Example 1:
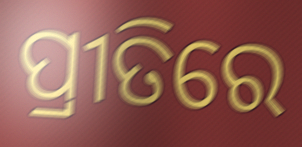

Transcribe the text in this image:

ପ୍ରୀତିରେ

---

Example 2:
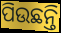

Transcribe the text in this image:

ପିଉଛନ୍ତି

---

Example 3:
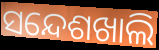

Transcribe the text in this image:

ସନ୍ଦେଶଖାଲି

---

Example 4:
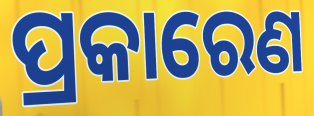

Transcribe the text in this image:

ପ୍ରକାରେଣ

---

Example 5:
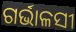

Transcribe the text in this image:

ଗର୍ଭାଳସୀ